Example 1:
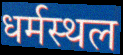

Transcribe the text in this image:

धर्मस्थल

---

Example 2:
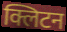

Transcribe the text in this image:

क्लिटन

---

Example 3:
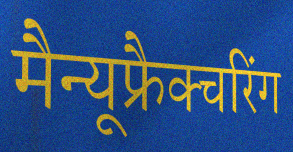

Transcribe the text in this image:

मैन्यूफ्रैक्चरिंग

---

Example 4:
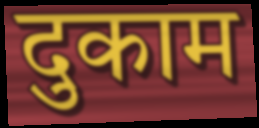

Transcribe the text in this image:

दुकाम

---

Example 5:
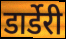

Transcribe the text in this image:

डार्डेरी